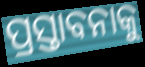
ପ୍ରସ୍ତାବନାକୁ